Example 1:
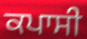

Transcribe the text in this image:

ਕਪਾਸੀ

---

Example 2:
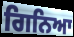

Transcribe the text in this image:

ਗਿਨਿਆ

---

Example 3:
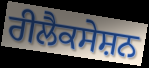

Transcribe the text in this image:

ਰੀਲੈਕਸੇਸ਼ਨ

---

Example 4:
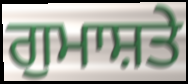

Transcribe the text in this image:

ਗੁਮਾਸ਼ਤੇ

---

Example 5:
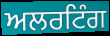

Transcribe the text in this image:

ਅਲਰਟਿੰਗ